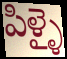
పిళ్ళై